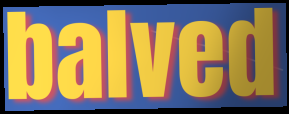
balved